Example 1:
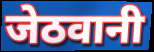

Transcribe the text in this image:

जेठवानी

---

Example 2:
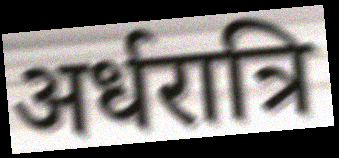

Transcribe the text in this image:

अर्धरात्रि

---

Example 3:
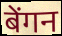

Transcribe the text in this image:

बेंगन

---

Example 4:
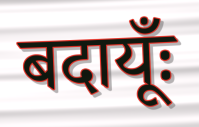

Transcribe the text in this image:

बदायूँः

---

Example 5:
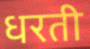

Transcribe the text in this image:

धरती